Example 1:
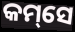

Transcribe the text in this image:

କମ୍‌ସେ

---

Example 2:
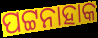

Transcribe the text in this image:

ପଟ୍ଟନାହାକ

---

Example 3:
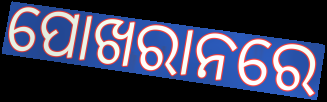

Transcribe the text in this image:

ପୋଖରାନରେ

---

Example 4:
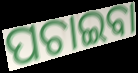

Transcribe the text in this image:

ପଚାଇବା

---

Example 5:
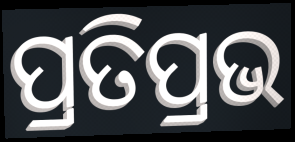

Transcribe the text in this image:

ପ୍ରତିପ୍ରଭ